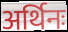
अर्थिनः